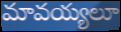
మావయ్యలూ